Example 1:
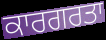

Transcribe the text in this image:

ਕਾਰਗਰਤਾ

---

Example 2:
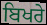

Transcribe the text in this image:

ਬਿਖਰੇ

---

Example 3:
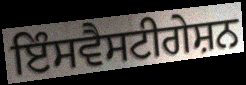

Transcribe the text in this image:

ਇੰਸਵੈਸਟੀਗੇਸ਼ਨ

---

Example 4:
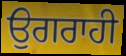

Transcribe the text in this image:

ਉਗਰਾਹੀ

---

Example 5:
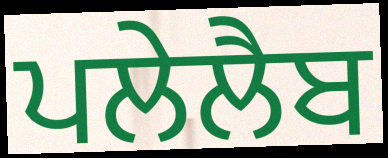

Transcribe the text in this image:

ਪਲੇਲੈਬ